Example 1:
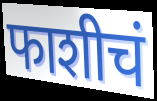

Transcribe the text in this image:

फाशीचं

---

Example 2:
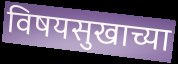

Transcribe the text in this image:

विषयसुखाच्या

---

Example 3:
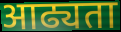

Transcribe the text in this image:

आढ्यता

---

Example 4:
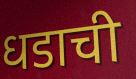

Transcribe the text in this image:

धडाची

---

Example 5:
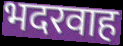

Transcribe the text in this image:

भदरवाह